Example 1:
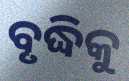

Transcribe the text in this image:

ବୃଦ୍ଧିକୁ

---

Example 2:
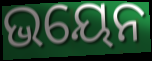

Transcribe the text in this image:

ଭୟେନ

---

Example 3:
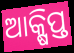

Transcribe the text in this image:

ଆକ୍ଷିପ୍ତ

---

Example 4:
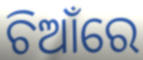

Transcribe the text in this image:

ଚିଆଁରେ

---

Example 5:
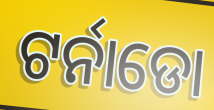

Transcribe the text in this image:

ଟର୍ନାଡୋ